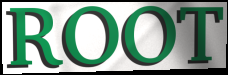
ROOT